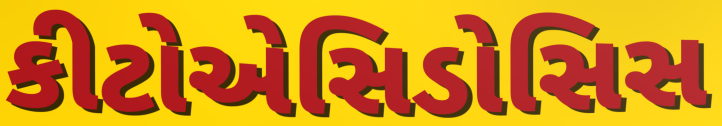
કીટોએસિડોસિસ